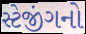
સ્ટેજીંગનો